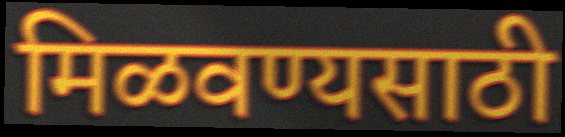
मिळवण्यसाठी